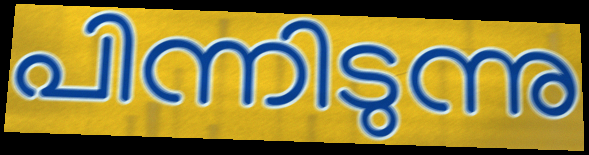
പിന്നിടുന്നു